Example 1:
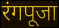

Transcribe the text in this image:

रंगपूजा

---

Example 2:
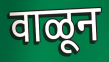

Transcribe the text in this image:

वाळून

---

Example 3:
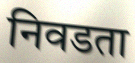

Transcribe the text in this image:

निवडता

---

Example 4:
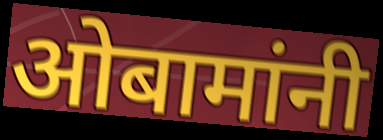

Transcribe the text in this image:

ओबामांनी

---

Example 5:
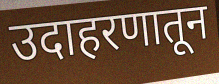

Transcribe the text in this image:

उदाहरणातून